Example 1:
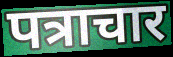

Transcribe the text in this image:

पत्राचार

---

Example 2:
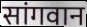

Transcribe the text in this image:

सांगवान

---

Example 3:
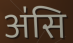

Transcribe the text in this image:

अ॑सि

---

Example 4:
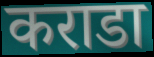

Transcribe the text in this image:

कराडा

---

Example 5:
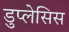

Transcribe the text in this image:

डुप्लेसिस